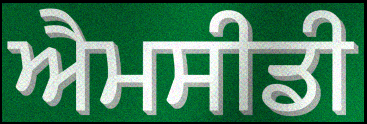
ਐਮਸੀਡੀ